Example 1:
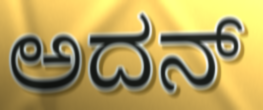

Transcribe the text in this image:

ಅದನ್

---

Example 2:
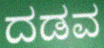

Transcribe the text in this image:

ದಡವ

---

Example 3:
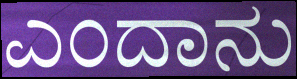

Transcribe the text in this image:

ಎಂದಾನು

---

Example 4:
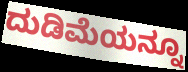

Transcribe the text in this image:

ದುಡಿಮೆಯನ್ನೂ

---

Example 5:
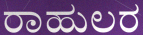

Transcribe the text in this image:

ರಾಹುಲರ